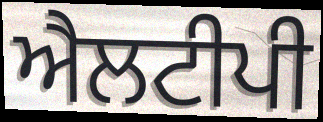
ਐਲਟੀਪੀ